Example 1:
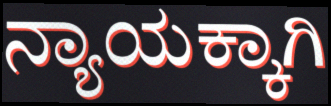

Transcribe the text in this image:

ನ್ಯಾಯಕ್ಕಾಗಿ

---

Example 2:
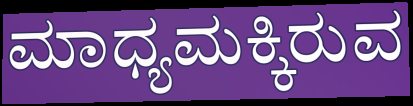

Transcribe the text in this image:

ಮಾಧ್ಯಮಕ್ಕಿರುವ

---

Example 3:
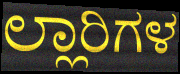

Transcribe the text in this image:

ಲ್ಲಾರಿಗಳ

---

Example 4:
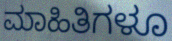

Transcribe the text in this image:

ಮಾಹಿತಿಗಳೂ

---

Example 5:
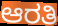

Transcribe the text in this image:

ಆರತಿ